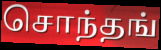
சொந்தங்